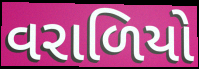
વરાળિયો